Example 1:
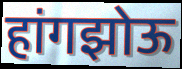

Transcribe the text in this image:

हांगझोऊ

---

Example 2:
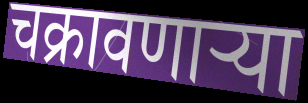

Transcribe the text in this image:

चक्रावणाऱ्या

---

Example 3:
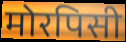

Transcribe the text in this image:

मोरपिसी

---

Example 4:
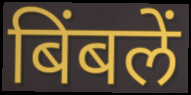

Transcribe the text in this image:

बिंबलें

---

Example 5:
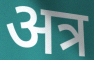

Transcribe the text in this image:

अत्र